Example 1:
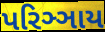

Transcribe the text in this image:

પરિઞ્ઞાય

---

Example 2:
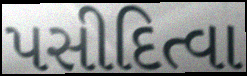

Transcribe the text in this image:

પસીદિત્વા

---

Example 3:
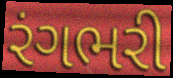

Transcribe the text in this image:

રંગભરી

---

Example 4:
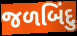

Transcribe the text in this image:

જળબિંદુ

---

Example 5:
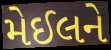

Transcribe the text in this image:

મેઈલને